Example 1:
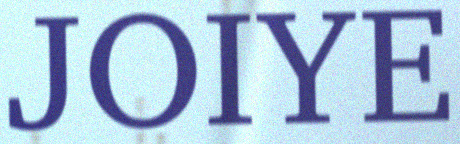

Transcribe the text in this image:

JOIYE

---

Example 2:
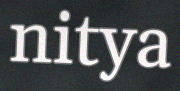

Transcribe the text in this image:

nitya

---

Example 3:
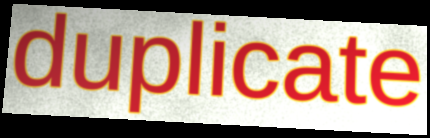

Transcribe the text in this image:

duplicate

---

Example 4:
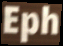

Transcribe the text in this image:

Eph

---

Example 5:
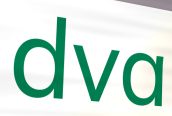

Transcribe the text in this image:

dva